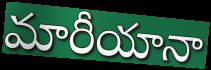
మారీయానా